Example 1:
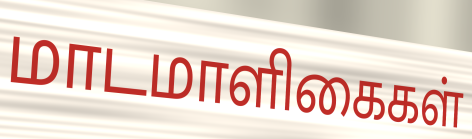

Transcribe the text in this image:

மாடமாளிகைகள்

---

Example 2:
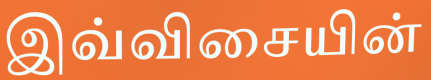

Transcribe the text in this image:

இவ்விசையின்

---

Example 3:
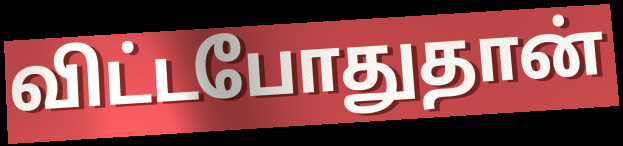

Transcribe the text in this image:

விட்டபோதுதான்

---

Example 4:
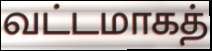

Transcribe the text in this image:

வட்டமாகத்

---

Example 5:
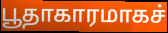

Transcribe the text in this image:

பூதாகாரமாகச்